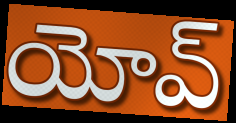
యోవ్